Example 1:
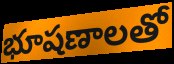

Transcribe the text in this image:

భూషణాలతో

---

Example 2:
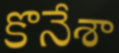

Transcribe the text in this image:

కొనేశా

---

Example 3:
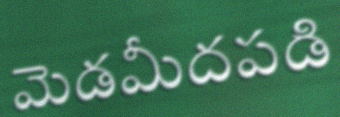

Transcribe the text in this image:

మెడమీదపడి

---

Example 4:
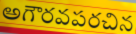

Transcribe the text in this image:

అగౌరవపరచిన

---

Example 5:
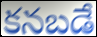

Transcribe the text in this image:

కనబడే